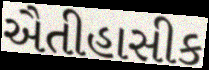
ઐતીહાસીક